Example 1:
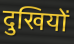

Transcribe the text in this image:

दुखियों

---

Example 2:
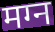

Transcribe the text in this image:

मग्‍न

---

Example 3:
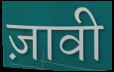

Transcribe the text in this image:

ज़ावी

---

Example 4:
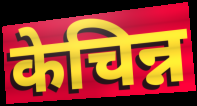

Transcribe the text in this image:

केचिन्न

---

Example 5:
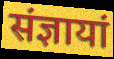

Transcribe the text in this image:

संज्ञायां